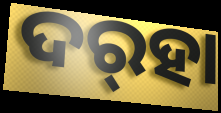
ଦର୍‌ହା